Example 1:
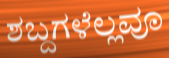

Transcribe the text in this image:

ಶಬ್ದಗಳೆಲ್ಲವೂ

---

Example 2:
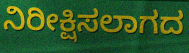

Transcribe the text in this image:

ನಿರೀಕ್ಷಿಸಲಾಗದ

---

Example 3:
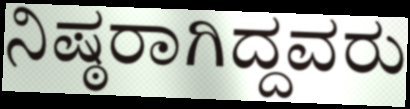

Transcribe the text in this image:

ನಿಷ್ಠರಾಗಿದ್ದವರು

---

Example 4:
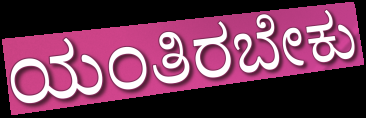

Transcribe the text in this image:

ಯಂತಿರಬೇಕು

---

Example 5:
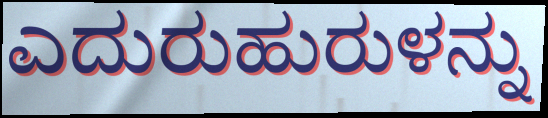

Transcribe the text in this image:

ಎದುರುಹುರುಳನ್ನು